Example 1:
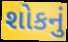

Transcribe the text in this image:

શોકનું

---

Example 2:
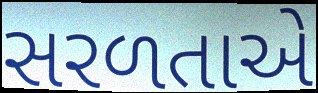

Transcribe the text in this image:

સરળતાએ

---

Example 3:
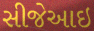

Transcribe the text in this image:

સીજેઆઇ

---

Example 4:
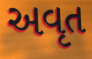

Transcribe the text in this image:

અવૃત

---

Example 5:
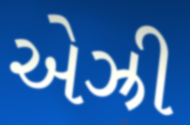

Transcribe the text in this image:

એઝ્રી